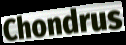
Chondrus